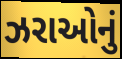
ઝરાઓનું